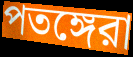
পতঙ্গেরা